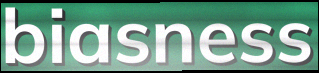
biasness